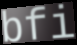
bfi